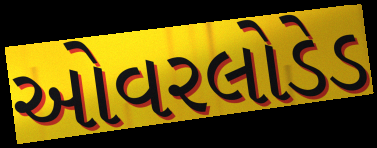
ઓવરલોડેડ